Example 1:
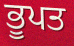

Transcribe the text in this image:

ਭੂਪਤ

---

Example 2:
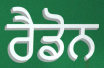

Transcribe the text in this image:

ਰੈਡੋਨ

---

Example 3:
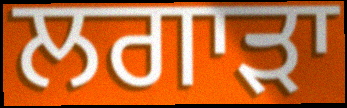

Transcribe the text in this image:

ਲਗਾੜਾ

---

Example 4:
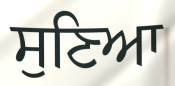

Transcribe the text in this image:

ਸੁਣਿਆ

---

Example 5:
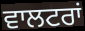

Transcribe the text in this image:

ਵਾਲਟਰਾਂ